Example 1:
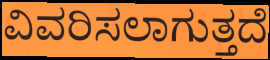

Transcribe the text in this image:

ವಿವರಿಸಲಾಗುತ್ತದೆ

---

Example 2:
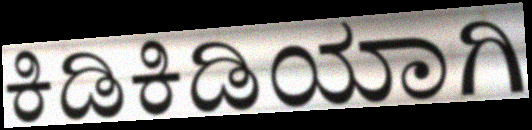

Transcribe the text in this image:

ಕಿಡಿಕಿಡಿಯಾಗಿ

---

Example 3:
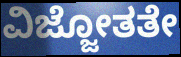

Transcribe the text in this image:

ವಿಜ್ಜೋತತೇ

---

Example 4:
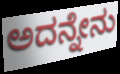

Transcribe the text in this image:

ಅದನ್ನೇನು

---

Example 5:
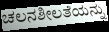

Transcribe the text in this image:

ಚಲನಶೀಲತೆಯನ್ನು